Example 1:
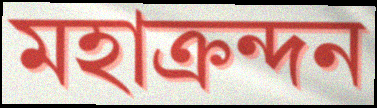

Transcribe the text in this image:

মহাক্রন্দন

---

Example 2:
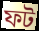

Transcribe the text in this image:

ফট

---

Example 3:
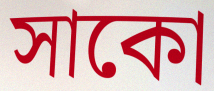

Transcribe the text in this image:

সাকো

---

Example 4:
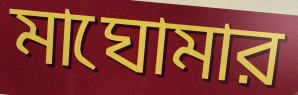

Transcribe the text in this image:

মাঘোমার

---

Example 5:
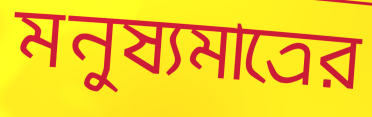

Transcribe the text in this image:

মনুষ্যমাত্রের